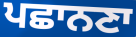
ਪਛਾਨਣਾ